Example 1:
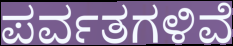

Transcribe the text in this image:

ಪರ್ವತಗಳಿವೆ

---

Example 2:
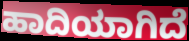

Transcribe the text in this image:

ಹಾದಿಯಾಗಿದೆ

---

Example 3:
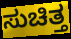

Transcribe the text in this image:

ಸುಚಿತ್ತ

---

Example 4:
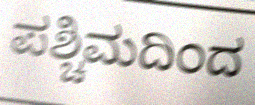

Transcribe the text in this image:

ಪಶ್ಚಿಮದಿಂದ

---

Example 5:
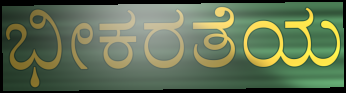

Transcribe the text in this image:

ಭೀಕರತೆಯ